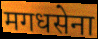
मगधसेना